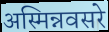
अस्मिन्नवसरे